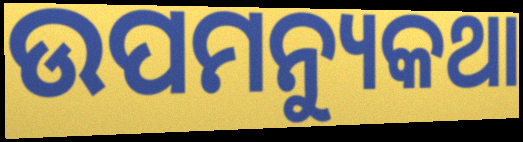
ଉପମନ୍ୟୁକଥା